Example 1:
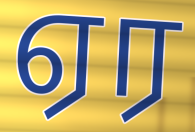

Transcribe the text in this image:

ஏர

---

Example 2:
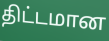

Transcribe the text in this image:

திட்டமான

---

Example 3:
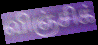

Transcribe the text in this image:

விஞ்சிக்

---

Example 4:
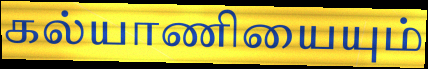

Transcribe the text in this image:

கல்யாணியையும்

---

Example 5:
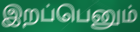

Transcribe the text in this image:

இறப்பெனும்